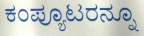
ಕಂಪ್ಯೂಟರನ್ನೂ